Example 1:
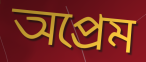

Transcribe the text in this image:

অপ্রেম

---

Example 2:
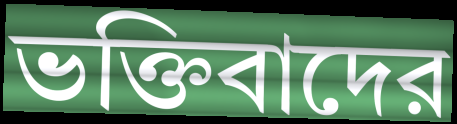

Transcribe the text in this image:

ভক্তিবাদের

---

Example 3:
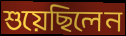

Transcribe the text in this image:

শুয়েছিলেন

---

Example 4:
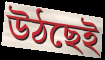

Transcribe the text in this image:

উঠছেই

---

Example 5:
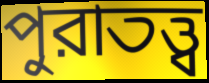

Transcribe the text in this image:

পুরাতত্ত্ব